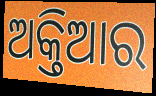
ଅକ୍ତିଆର